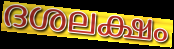
ദശലക്ഷം